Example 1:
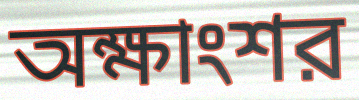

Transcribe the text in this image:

অক্ষাংশর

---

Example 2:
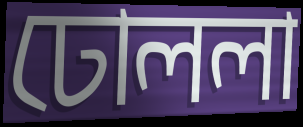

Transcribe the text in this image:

ঢোললা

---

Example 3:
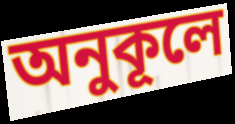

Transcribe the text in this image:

অনুকূলে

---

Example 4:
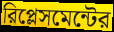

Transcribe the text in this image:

রিপ্লেসমেন্টের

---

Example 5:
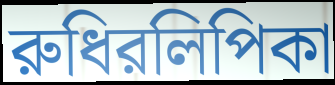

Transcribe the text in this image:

রুধিরলিপিকা